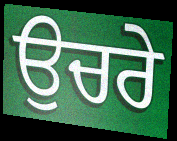
ਉਚਰੇ